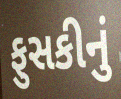
ફુસકીનું